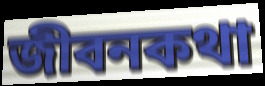
জীবনকথা